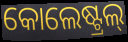
କୋଲେଷ୍ଟ୍ରଲ୍